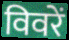
विवरें